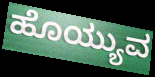
ಹೊಯ್ಯುವ